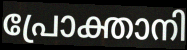
പ്രോക്താനി